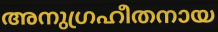
അനുഗ്രഹീതനായ